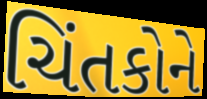
ચિંતકોને